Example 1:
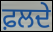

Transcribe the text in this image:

ਫ਼ਲਦੇ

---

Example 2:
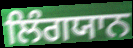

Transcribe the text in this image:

ਲਿੰਗਯਾਨ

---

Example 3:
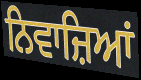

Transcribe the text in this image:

ਨਿਵਾਜ਼ਿਆਂ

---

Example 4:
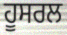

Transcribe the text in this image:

ਹੂਸਰਲ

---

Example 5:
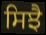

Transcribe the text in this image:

ਸਿਝੈ